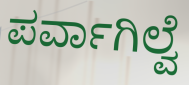
ಪರ್ವಾಗಿಲ್ವೆ